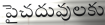
పైచదువులకు